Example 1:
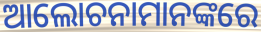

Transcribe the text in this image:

ଆଲୋଚନାମାନଙ୍କରେ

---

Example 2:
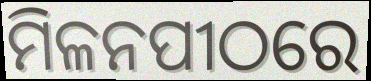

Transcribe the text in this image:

ମିଳନପୀଠରେ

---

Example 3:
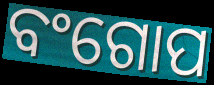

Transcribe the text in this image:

ବଂଗୋପ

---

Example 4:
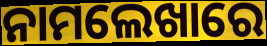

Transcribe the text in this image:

ନାମଲେଖାରେ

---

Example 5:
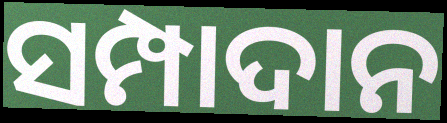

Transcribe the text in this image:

ସମ୍ପାଦାନ